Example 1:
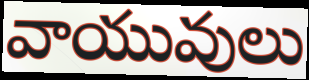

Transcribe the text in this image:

వాయువులు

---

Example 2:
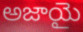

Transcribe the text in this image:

అజాయై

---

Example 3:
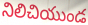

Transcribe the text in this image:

నిలిచియుండ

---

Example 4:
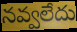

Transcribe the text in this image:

నవ్వలేదు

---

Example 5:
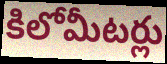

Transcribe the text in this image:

కిలోమీటర్లు